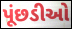
પૂંછડીઓ